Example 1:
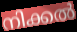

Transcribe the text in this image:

നിക്കൽ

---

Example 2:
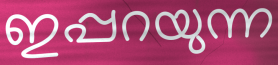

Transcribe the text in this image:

ഇപ്പറയുന്ന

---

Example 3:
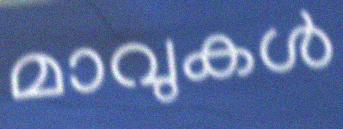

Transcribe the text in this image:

മാവുകൾ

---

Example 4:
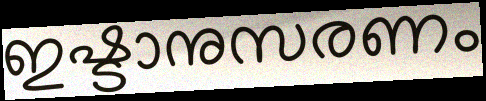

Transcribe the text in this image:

ഇഷ്ടാനുസരണം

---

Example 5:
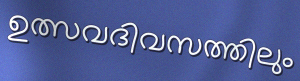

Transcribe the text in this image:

ഉത്സവദിവസത്തിലും